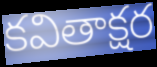
కవితాక్షర